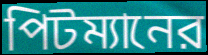
পিটম্যানের